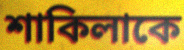
শাকিলাকে